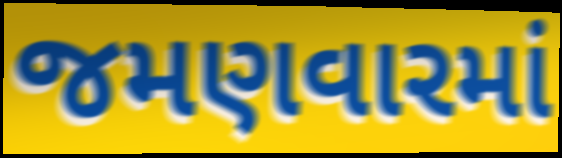
જમણવારમાં